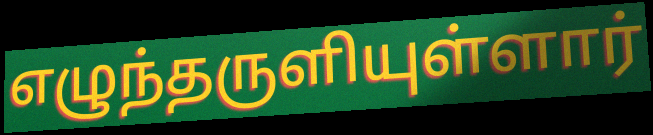
எழுந்தருளியுள்ளார்